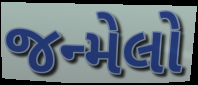
જન્મેલો